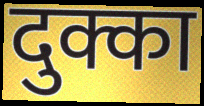
दुक्‍का